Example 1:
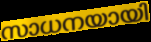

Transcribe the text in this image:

സാധനയായി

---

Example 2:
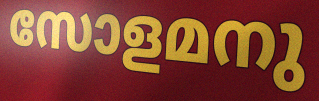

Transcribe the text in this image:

സോളമനു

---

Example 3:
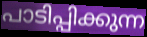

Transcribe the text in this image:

പാടിപ്പിക്കുന്ന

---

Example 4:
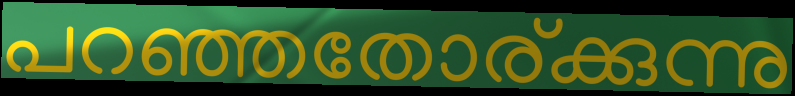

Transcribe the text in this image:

പറഞ്ഞതോര്ക്കുന്നു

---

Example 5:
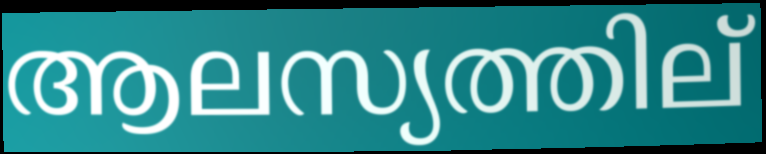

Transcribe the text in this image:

ആലസ്യത്തില്